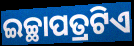
ଇଚ୍ଛାପତ୍ରଟିଏ